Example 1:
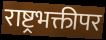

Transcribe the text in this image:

राष्ट्रभक्तीपर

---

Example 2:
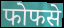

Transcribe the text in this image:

फोफसे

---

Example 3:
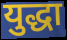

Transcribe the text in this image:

युद्धा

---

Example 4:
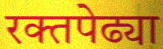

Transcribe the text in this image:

रक्तपेढ्या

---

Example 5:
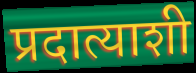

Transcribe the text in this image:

प्रदात्याशी